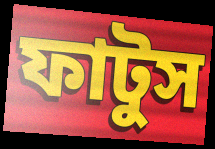
ফাটুস